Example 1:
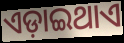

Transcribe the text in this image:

ଏଡ଼ାଇଥାଏ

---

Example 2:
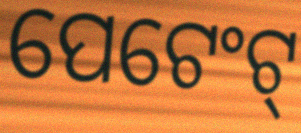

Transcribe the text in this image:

ପେଟେଂଟ୍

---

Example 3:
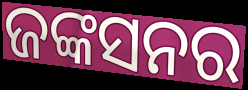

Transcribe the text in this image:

ଜଙ୍କସନର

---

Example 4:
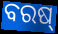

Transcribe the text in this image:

ବରଷ୍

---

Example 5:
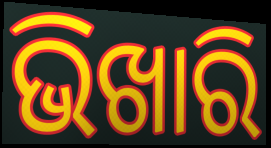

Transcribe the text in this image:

ଭିଖାରି